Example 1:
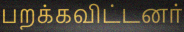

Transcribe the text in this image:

பறக்கவிட்டனர்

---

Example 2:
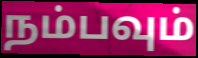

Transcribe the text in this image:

நம்பவும்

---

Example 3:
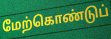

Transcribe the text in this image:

மேற்கொண்டுப்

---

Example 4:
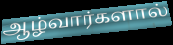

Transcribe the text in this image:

ஆழ்வார்களால்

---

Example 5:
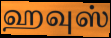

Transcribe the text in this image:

ஹவுஸ்